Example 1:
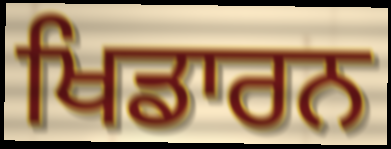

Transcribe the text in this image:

ਖਿਡਾਰਨ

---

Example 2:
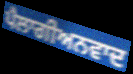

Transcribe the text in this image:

ਪੈਲਾਗੀਅਨਵਾਦ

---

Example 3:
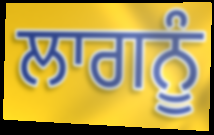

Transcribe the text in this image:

ਲਾਗਨੂੰ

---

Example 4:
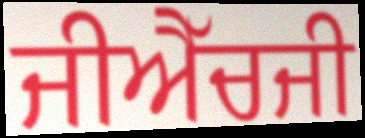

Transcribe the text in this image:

ਜੀਐੱਚਜੀ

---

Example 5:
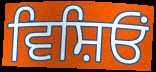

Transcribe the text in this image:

ਵਿਸ਼ਿਓਂ